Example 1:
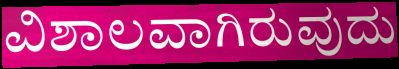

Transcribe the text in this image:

ವಿಶಾಲವಾಗಿರುವುದು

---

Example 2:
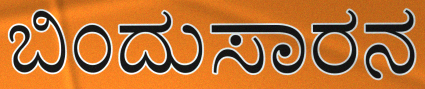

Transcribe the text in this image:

ಬಿಂದುಸಾರನ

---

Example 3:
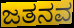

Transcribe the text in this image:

ಜತನವ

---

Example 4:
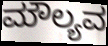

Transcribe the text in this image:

ಮೌಲ್ಯವ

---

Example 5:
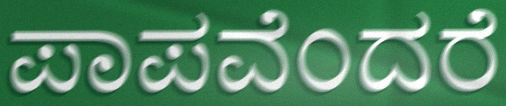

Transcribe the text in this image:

ಪಾಪವೆಂದರೆ